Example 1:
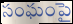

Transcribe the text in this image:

సంఘంపై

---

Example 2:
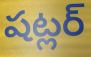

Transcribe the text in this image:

షట్లర్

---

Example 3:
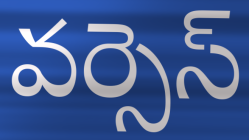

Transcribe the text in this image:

వర్సెస్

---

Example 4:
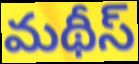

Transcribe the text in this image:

మథీస్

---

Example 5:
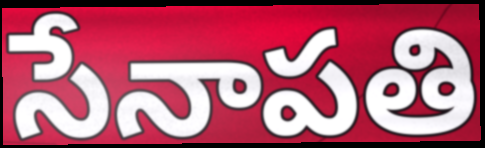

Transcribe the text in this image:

సేనాపతి